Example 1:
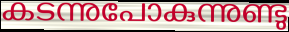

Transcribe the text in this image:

കടന്നുപോകുന്നുണ്ടു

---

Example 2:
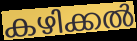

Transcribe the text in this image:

കഴിക്കൽ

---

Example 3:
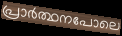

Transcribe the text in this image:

പ്രാർത്ഥനപോലെ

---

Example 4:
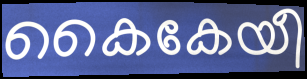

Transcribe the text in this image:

കൈകേയീ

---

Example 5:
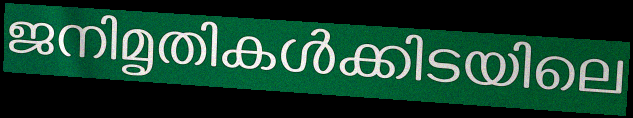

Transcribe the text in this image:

ജനിമൃതികൾക്കിടയിലെ